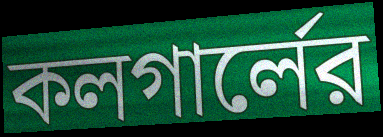
কলগার্লের